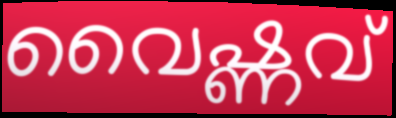
വൈഷ്ണവ്